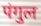
पंगुल